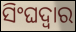
ସିଂଘଦ୍ୱାର